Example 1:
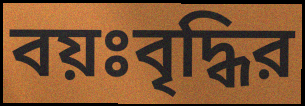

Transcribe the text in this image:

বয়ঃবৃদ্ধির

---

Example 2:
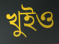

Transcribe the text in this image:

খুইও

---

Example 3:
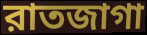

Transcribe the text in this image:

রাতজাগা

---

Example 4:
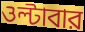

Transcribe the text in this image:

ওল্টাবার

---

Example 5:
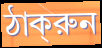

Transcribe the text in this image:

ঠাক্‌রুন